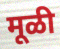
मूळी